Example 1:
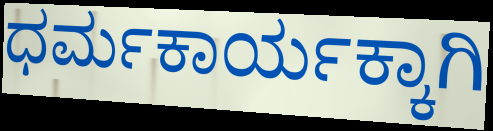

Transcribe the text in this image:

ಧರ್ಮಕಾರ್ಯಕ್ಕಾಗಿ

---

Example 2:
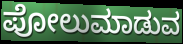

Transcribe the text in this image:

ಪೋಲುಮಾಡುವ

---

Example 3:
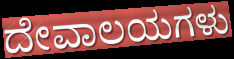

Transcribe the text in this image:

ದೇವಾಲಯಗಳು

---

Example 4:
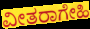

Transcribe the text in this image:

ವೀತರಾಗೇಹಿ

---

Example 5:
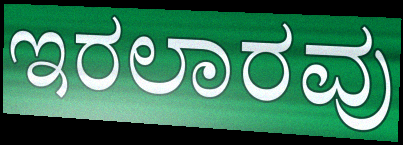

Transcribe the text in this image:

ಇರಲಾರವು